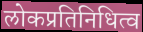
लोकप्रतिनिधित्व